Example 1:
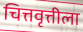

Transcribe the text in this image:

चित्तवृत्तीला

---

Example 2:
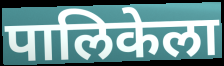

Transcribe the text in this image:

पालिकेला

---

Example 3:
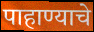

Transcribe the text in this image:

पाहाण्याचे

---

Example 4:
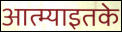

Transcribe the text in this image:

आत्म्याइतके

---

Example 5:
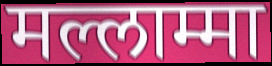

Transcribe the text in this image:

मल्लाम्मा